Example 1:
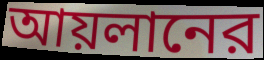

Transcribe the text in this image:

আয়লানের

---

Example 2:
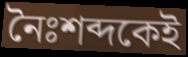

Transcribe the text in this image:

নৈঃশব্দকেই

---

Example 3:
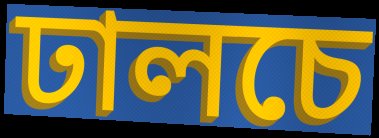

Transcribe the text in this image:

ঢালচে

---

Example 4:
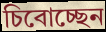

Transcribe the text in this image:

চিবোচ্ছেন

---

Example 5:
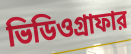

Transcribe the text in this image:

ভিডিওগ্রাফার